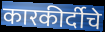
कारकीर्दीचे